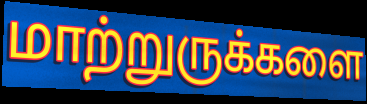
மாற்றுருக்களை